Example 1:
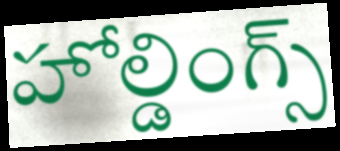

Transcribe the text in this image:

హోల్డింగ్స్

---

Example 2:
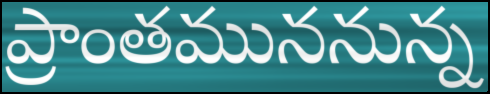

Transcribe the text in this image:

ప్రాంతముననున్న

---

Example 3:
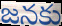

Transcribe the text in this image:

జనకు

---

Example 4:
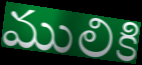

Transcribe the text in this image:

ములికి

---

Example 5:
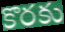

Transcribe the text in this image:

కొరకు